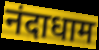
नंदाधाम